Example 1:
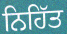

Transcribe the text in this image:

ਨਿਹਿੱਤ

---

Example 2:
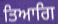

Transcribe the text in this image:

ਤਿਆਗਿ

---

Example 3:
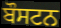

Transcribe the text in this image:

ਬੌਸਟਨ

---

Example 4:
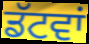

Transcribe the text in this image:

ਡੱਟਵਾਂ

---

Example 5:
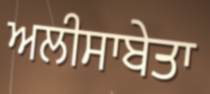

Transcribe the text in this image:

ਅਲੀਸਾਬੇਤਾ